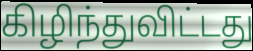
கிழிந்துவிட்டது